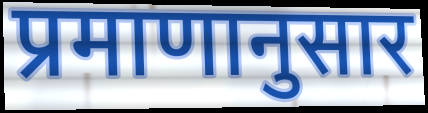
प्रमाणानुसार